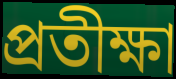
প্রতীক্ষা